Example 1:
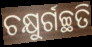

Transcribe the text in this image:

ଚକ୍ଷୁର୍ଗଚ୍ଛତି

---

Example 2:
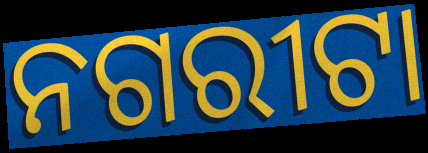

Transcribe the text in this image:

ନଗରୀଟା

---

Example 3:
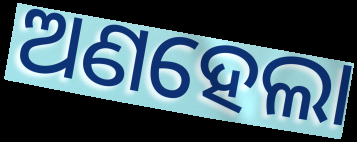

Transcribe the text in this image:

ଅଣହେଲା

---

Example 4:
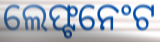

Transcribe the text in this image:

ଲେଫ୍ଟନେଂଟ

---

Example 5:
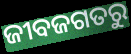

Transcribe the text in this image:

ଜୀବଜଗତରୁ